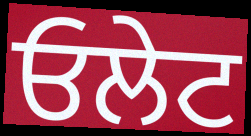
ਓਲੇਟ